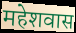
महेशवास